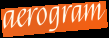
aerogram